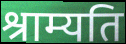
श्राम्यति